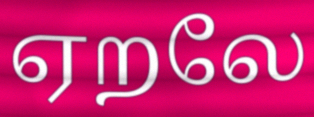
ஏறலே